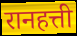
रानहत्ती